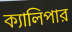
ক্যালিপার